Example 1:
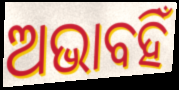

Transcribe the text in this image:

ଅଭାବହିଁ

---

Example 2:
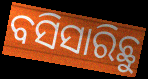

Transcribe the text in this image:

ବସିସାରିଛୁ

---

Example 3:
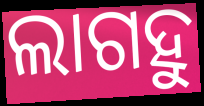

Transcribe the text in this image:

ଲାଗହୁ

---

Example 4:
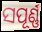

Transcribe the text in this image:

ସପୂର୍ଣ୍ଣ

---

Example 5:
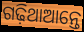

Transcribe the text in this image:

ଗଢ଼ିଥାଆନ୍ତେ